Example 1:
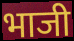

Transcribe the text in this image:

भाजी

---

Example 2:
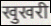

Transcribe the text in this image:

खुखरी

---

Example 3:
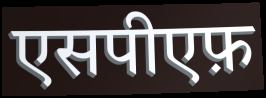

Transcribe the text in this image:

एसपीएफ़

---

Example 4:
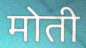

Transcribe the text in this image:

मोती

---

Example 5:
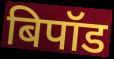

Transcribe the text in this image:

बिपॉड